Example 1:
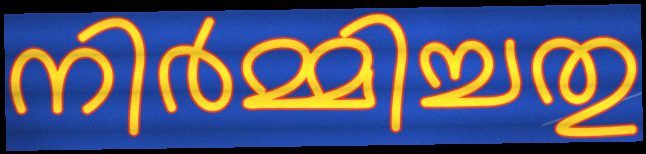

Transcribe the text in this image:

നിർമ്മിച്ചതു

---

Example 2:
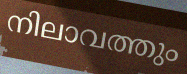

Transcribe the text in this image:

നിലാവത്തും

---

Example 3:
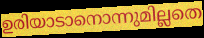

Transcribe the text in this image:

ഉരിയാടാനൊന്നുമില്ലതെ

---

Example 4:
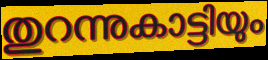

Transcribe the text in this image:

തുറന്നുകാട്ടിയും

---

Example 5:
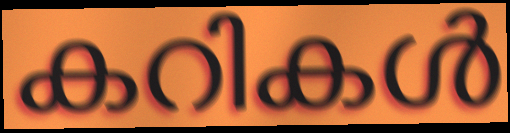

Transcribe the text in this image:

കറികൾ